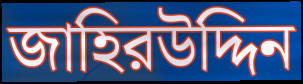
জাহিরউদ্দিন